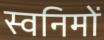
स्वनिमों